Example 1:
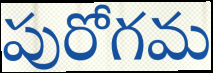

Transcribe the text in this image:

పురోగమ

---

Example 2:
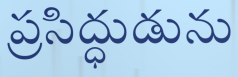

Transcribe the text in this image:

ప్రసిద్ధుడును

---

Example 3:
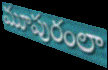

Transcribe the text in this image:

మూపురంలా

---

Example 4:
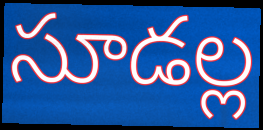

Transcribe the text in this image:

సూడల్ల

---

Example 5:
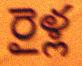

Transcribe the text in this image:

రైళ్ల